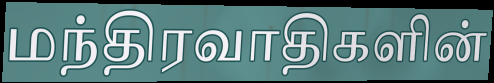
மந்திரவாதிகளின்